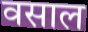
वसाल